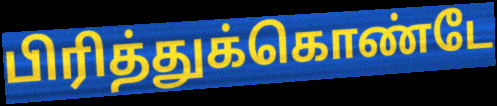
பிரித்துக்கொண்டே